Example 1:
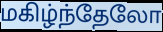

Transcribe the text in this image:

மகிழ்ந்தேலோ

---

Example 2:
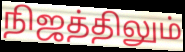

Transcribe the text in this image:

நிஜத்திலும்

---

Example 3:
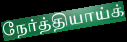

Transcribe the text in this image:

நேர்த்தியாய்க்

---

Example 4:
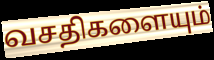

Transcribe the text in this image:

வசதிகளையும்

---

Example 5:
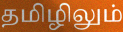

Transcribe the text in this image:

தமிழிலும்